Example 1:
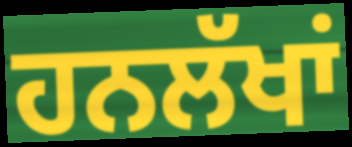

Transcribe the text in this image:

ਹਨਲੱਖਾਂ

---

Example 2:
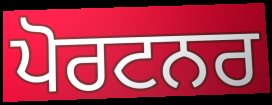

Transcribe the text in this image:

ਪੋਰਟਨਰ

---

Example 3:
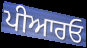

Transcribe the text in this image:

ਪੀਆਰਓ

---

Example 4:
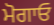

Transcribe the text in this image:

ਮੋਗਾਓ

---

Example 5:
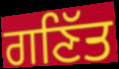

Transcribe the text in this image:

ਗਣਿੱਤ